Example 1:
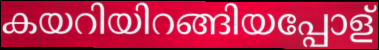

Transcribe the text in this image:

കയറിയിറങ്ങിയപ്പോള്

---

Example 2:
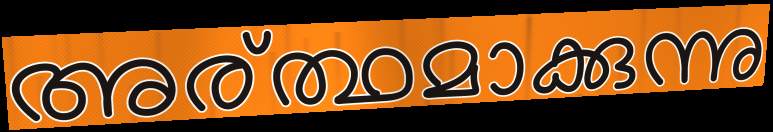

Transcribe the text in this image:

അര്ത്ഥമാക്കുന്നു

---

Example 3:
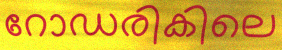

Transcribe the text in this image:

റോഡരികിലെ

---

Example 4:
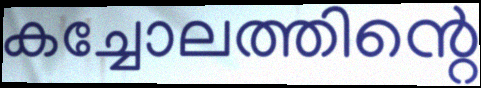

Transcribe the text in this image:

കച്ചോലത്തിന്റെ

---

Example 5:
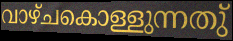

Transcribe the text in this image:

വാഴ്ചകൊള്ളുന്നതു്